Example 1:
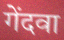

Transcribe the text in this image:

गेंदवा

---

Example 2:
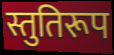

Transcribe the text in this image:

स्तुतिरूप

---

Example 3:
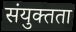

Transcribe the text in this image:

संयुक्तता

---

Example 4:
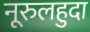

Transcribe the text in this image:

नूरुलहुदा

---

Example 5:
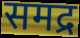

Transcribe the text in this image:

समद्र